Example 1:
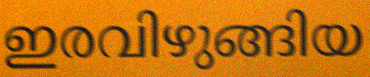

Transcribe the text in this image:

ഇരവിഴുങ്ങിയ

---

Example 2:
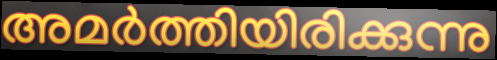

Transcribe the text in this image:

അമർത്തിയിരിക്കുന്നു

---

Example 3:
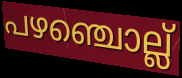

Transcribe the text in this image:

പഴഞ്ചൊല്ല്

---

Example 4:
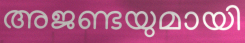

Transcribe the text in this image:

അജണ്ടയുമായി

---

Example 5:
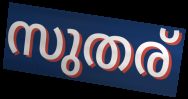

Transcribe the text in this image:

സുതര്